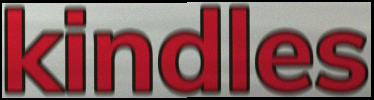
kindles